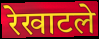
रेखाटले